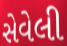
સેવેલી